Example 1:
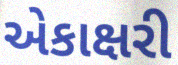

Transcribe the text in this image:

એકાક્ષરી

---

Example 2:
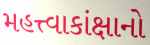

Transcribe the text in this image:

મહત્ત્વાકાંક્ષાનો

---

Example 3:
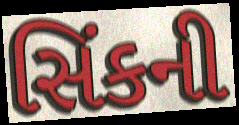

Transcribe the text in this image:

સિંકની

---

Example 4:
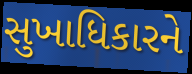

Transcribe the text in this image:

સુખાધિકારને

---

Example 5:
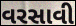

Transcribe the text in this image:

વરસાવી